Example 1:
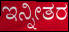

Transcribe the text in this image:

ಇನ್ನೀತರ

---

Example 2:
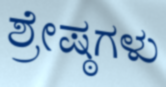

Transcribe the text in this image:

ಶ್ರೇಷ್ಠಗಳು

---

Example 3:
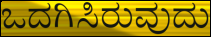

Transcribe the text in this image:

ಒದಗಿಸಿರುವುದು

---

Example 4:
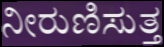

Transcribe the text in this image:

ನೀರುಣಿಸುತ್ತ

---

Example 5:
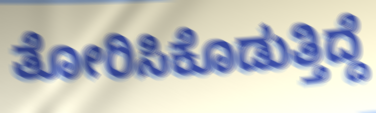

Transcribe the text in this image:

ತೋರಿಸಿಕೊಡುತ್ತಿದ್ದೆ